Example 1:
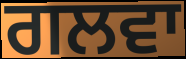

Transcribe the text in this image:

ਗਲਵਾ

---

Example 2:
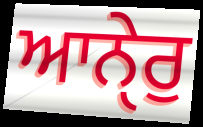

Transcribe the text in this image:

ਆਨੇੑਰੁ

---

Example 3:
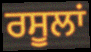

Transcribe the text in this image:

ਰਸੂਲਾਂ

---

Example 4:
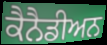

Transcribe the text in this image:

ਕੈਨੈਡੀਅਨ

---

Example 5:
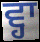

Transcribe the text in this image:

ਵ੍ਹਾ